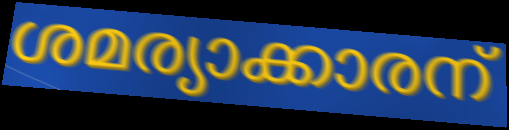
ശമര്യാക്കാരന്